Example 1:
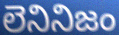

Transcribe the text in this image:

లెనినిజం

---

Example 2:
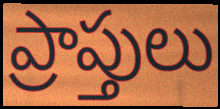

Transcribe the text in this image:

ప్రాప్తులు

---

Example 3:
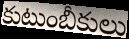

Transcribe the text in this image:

కుటుంబీకులు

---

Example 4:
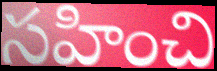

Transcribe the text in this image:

సహించి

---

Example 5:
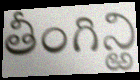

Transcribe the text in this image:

తీంగిన్ఱి